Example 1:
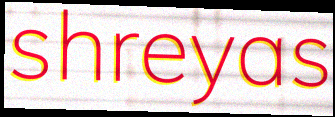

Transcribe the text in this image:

shreyas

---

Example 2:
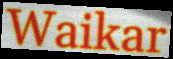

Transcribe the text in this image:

Waikar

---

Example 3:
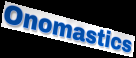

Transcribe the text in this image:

Onomastics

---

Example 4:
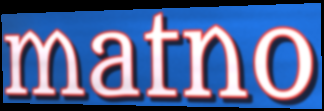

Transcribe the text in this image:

matno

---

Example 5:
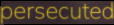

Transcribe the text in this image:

persecuted